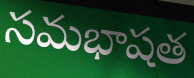
సమభాషత